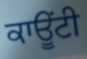
ਕਾਊਂਟੀ